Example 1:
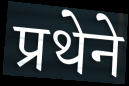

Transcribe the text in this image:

प्रथेने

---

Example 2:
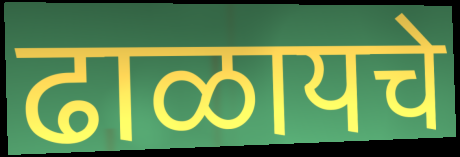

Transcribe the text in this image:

ढाळायचे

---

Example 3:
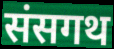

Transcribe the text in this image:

संसगथ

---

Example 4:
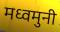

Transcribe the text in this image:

मध्वमुनी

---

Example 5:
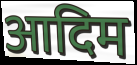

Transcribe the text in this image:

आदिम